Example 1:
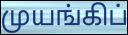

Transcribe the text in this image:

முயங்கிப்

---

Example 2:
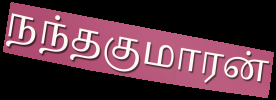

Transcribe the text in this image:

நந்தகுமாரன்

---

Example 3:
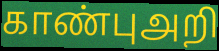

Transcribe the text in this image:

காண்புஅறி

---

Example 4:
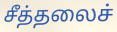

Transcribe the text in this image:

சீத்தலைச்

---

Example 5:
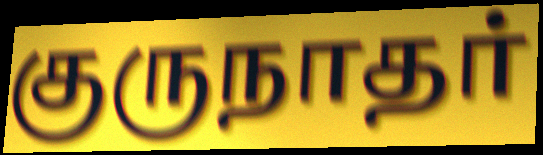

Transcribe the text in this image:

குருநாதர்